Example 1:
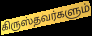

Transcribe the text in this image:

கிருஸ்தவர்களும்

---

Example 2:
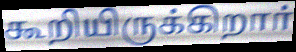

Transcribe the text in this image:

கூறியிருக்கிறார்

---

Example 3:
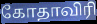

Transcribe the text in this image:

கோதாவிரி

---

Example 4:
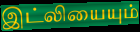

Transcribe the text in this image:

இட்லியையும்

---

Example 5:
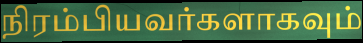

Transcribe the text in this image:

நிரம்பியவர்களாகவும்